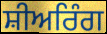
ਸ਼ੀਅਰਿੰਗ